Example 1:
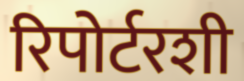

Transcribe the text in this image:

रिपोर्टरशी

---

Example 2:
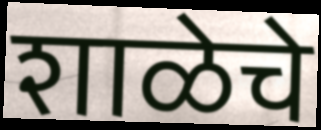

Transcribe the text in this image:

शाळेचे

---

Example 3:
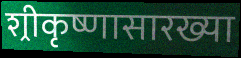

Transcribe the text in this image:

श्रीकृष्णासारख्या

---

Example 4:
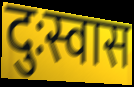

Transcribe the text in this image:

दुःस्वास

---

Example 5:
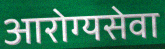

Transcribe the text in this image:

आरोग्यसेवा